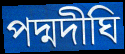
পদ্মদীঘি